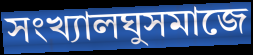
সংখ্যালঘুসমাজে